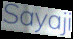
Sayaji